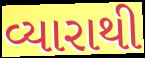
વ્યારાથી